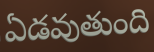
ఏడవుతుంది